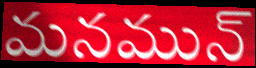
మనమున్